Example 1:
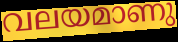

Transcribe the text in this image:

വലയമാണു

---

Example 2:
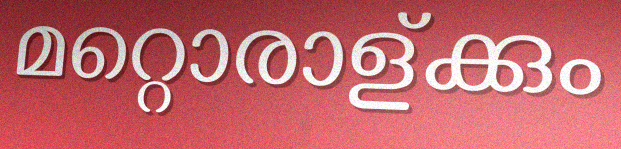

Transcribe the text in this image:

മറ്റൊരാള്ക്കും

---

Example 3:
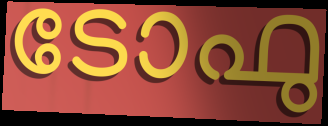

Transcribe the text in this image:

ടോഫു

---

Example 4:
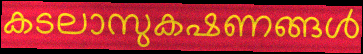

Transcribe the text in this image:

കടലാസുകഷണങ്ങൾ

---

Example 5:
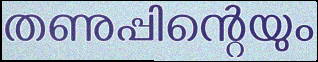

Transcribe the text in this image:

തണുപ്പിന്റെയും